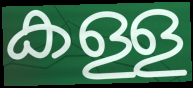
കള്ള